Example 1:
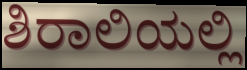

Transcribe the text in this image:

ಶಿರಾಲಿಯಲ್ಲಿ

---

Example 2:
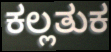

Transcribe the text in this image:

ಕಲ್ಲತುಕ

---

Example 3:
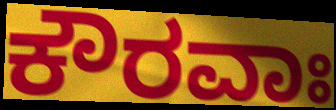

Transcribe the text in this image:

ಕೌರವಾಃ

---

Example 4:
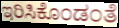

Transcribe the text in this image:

ಇರಿಸಿಕೊಂಡಂತೆ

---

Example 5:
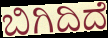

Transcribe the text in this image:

ಬಿಗಿದಿದೆ